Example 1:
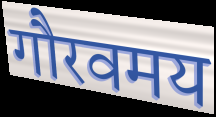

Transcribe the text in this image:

गौरवमय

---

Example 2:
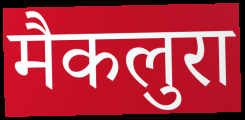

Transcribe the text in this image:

मैकलुरा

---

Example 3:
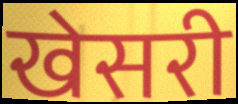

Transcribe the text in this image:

खेसरी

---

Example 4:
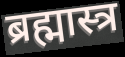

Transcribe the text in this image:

ब्रह्मास्त्र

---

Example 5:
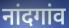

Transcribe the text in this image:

नांदगांव